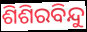
ଶିଶିରବିନ୍ଦୁ